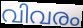
വിവരം